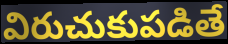
విరుచుకుపడితే